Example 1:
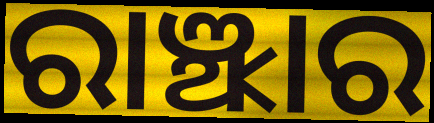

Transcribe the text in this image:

ରାଞ୍ଝାର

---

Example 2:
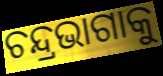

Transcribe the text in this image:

ଚନ୍ଦ୍ରଭାଗାକୁ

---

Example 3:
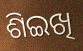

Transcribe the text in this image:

ଶିଇଖି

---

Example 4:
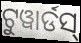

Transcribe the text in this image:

ଟୁୱାର୍ଡସ୍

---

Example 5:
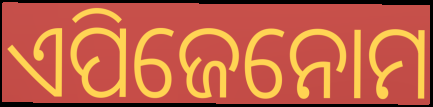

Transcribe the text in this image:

ଏପିଜେନୋମ